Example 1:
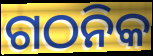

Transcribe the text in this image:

ଗଠନିକ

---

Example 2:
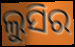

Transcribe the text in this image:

ଲୁସିର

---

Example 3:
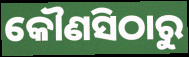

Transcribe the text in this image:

କୌଣସିଠାରୁ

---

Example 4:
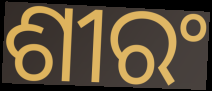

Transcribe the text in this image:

ଶୀରଂ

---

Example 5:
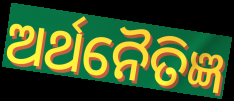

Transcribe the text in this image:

ଅର୍ଥନୈତିଜ୍ଞ